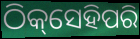
ଠିକ୍‌ସେହିପରି